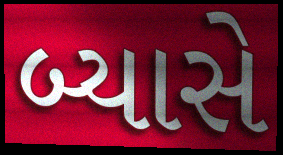
બ્યાસે